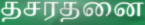
தசரதனை